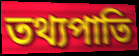
তথ্যপাতি